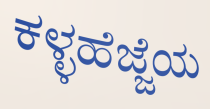
ಕಳ್ಳಹೆಜ್ಜೆಯ